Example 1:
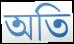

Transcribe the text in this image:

অতি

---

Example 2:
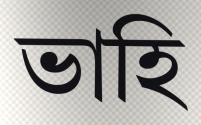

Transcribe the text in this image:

ভাহি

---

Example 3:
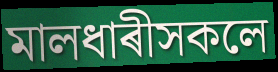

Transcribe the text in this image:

মালধাৰীসকলে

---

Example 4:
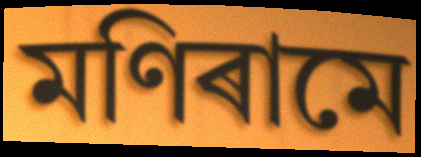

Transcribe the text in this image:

মণিৰামে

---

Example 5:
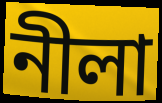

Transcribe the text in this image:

নীলা